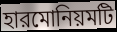
হারমোনিয়মটি